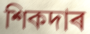
শিকদাৰ